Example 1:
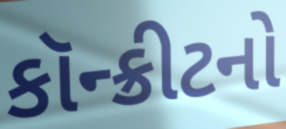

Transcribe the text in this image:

કૉન્ક્રીટનો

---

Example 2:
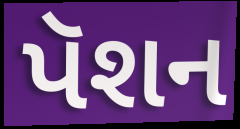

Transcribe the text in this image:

પૅશન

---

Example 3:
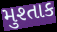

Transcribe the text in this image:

મુશ્તાક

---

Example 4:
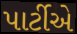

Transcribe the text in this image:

પાર્ટીએ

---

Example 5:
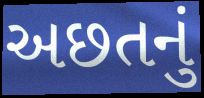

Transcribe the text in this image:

અછતનું